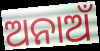
ଅନାଅଁ